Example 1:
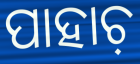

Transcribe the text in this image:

ପାହାଚ଼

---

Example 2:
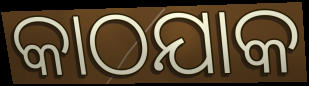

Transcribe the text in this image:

କାଠଯାକ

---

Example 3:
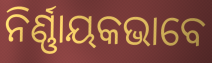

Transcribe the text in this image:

ନିର୍ଣ୍ଣାୟକଭାବେ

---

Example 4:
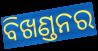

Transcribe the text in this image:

ବିଖଣ୍ଡନର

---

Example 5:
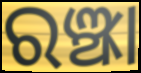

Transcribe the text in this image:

ରଞ୍ଝା